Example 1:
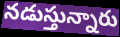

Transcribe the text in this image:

నడుస్తున్నారు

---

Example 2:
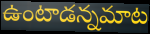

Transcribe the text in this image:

ఉంటాడన్నమాట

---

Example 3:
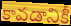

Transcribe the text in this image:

కావడానికీ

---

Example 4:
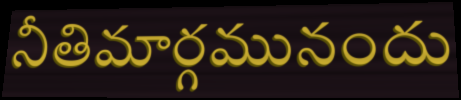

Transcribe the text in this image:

నీతిమార్గమునందు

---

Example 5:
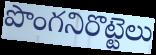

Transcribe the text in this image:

పొంగనిరొట్టెలు